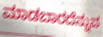
ಮಾಡಬಾರದೆನ್ನುವ